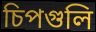
চিপগুলি